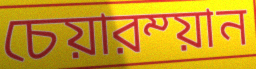
চেয়ারম্য়ান